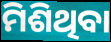
ମିଶିଥିବା